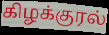
கிழக்குரல்